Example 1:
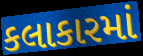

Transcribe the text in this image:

કલાકારમાં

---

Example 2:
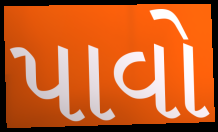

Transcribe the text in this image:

પાવો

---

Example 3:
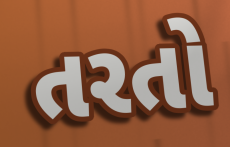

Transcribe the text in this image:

તરતો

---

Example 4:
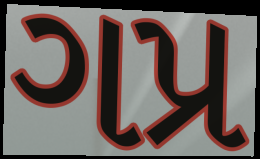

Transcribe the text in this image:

ગપ્ર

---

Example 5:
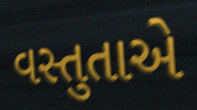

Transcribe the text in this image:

વસ્તુતાએ